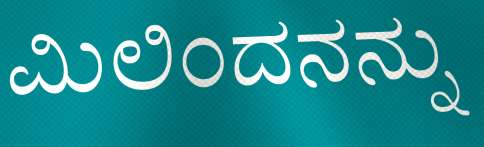
ಮಿಲಿಂದನನ್ನು